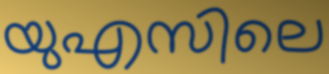
യുഎസിലെ